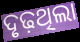
ଦୃଢ଼ଥିଲା